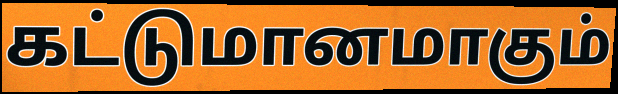
கட்டுமானமாகும்